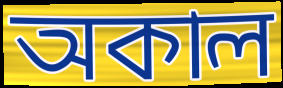
অকাল